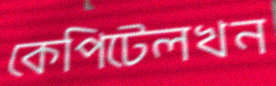
কেপিটেলখন